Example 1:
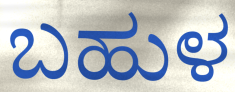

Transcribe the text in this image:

ಬಹುಳ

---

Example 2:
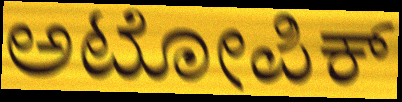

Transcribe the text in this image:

ಅಟೋಪಿಕ್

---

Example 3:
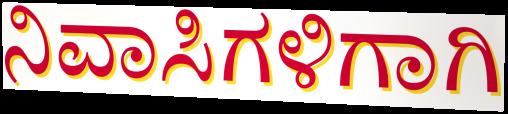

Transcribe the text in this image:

ನಿವಾಸಿಗಳಿಗಾಗಿ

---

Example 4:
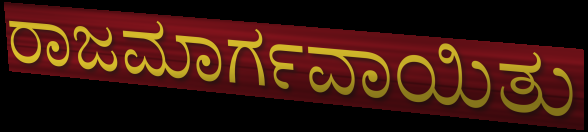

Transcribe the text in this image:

ರಾಜಮಾರ್ಗವಾಯಿತು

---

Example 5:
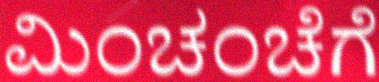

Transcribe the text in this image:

ಮಿಂಚಂಚೆಗೆ